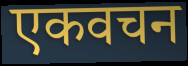
एकवचन